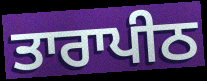
ਤਾਰਾਪੀਠ